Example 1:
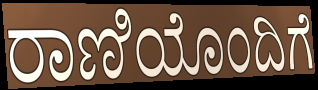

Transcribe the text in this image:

ರಾಣಿಯೊಂದಿಗೆ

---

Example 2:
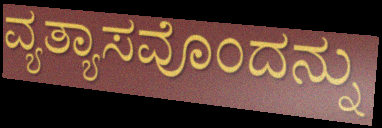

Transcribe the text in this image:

ವ್ಯತ್ಯಾಸವೊಂದನ್ನು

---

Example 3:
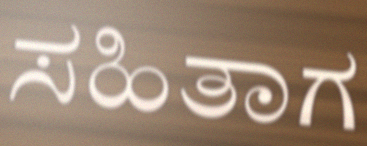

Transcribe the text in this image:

ಸಹಿತಾಗ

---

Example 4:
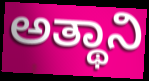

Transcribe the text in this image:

ಅತ್ಥಾನಿ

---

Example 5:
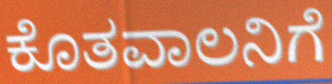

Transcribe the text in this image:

ಕೊತವಾಲನಿಗೆ